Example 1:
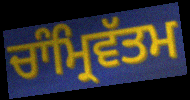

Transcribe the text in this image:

ਚਾੰਮ੍ਰਿਵੱਤਮ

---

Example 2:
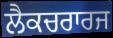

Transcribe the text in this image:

ਲੈਕਚਰਾਰਜ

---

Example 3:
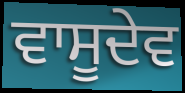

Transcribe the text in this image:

ਵਾਸੂਦੇਵ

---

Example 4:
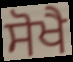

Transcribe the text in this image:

ਸੋਖੈ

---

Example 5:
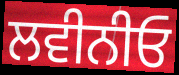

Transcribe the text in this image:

ਲਵੀਨੀਓ